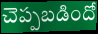
చెప్పబడిందో